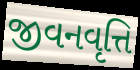
જીવનવૃત્તિ